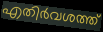
എതിർവശത്ത്